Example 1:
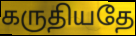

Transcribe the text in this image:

கருதியதே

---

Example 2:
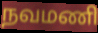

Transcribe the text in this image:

நவமணி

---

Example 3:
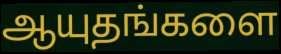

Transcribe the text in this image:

ஆயுதங்களை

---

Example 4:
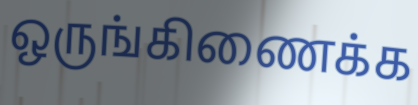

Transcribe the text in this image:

ஒருங்கிணைக்க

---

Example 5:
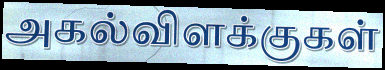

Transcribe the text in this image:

அகல்விளக்குகள்